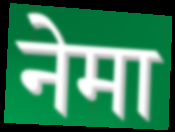
नेमा